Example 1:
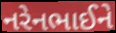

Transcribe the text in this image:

નરેનભાઈને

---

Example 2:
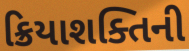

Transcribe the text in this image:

ક્રિયાશક્તિની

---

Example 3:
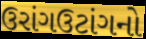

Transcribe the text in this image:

ઉરાંગઉટાંગનો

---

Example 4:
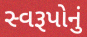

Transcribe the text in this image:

સ્વરૂપોનું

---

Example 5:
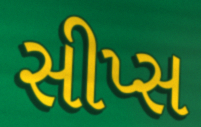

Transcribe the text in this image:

સીપ્સ